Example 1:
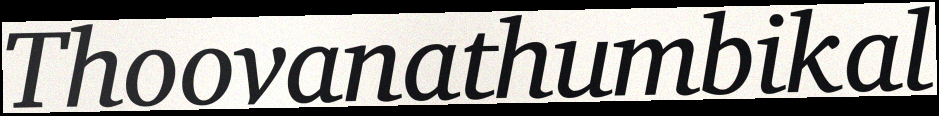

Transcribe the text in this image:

Thoovanathumbikal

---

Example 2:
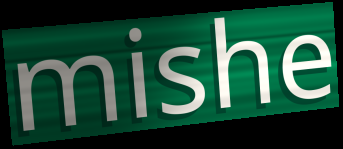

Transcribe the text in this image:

mishe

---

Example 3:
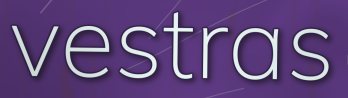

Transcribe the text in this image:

vestras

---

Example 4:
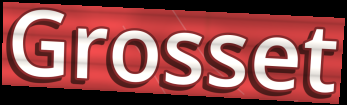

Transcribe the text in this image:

Grosset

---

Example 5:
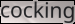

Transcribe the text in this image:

cocking